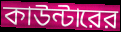
কাউন্টারের